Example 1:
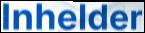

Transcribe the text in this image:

Inhelder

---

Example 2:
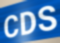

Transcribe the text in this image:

CDS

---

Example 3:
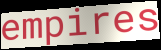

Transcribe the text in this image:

empires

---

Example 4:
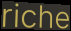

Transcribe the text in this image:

riche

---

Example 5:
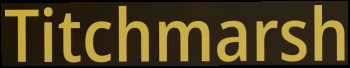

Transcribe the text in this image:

Titchmarsh